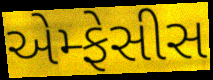
એમ્ફેસીસ